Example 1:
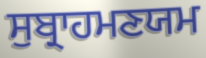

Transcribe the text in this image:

ਸੁਬ੍ਰਾਹਮਣਯਮ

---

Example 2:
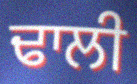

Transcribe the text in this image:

ਢਾਲੀ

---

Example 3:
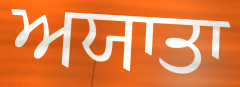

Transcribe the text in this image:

ਅਯਾਤਾ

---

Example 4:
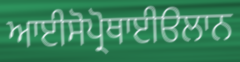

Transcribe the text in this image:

ਆਈਸੋਪ੍ਰੋਥਾਈੳਲਾਨ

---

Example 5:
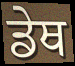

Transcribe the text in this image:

ਡੇਥ